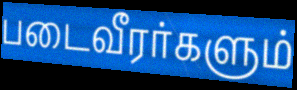
படைவீரர்களும்